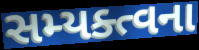
સમ્યક્ત્વના